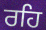
ਰਹਿ